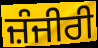
ਜ਼ੰਜੀਰੀ